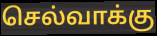
செல்வாக்கு